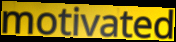
motivated